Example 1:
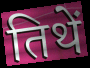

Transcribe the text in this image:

तिथें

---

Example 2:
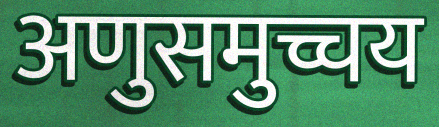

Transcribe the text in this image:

अणुसमुच्चय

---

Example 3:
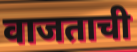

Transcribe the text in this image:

वाजताची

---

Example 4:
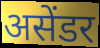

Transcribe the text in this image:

असेंडर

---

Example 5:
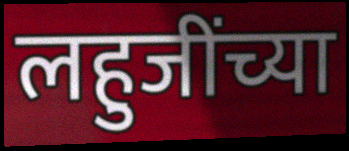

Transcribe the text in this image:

लहुजींच्या